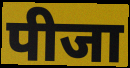
पीजा